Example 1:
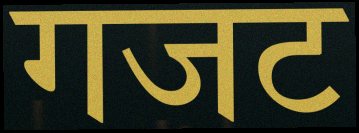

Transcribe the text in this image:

गजट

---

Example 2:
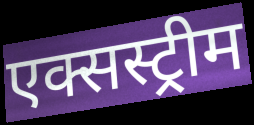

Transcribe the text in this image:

एक्सस्ट्रीम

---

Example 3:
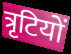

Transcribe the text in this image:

त्रृटियों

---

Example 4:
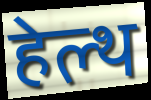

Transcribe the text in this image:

हेल्‍थ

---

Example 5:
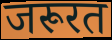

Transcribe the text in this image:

जरूरत